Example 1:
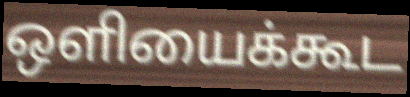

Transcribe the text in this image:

ஒளியைக்கூட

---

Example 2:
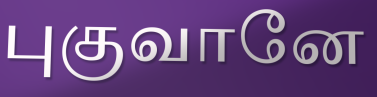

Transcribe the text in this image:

புகுவானே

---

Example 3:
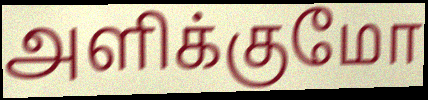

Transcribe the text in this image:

அளிக்குமோ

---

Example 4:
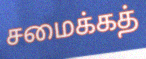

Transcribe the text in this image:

சமைக்கத்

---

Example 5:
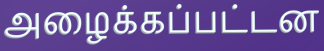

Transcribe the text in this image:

அழைக்கப்பட்டன